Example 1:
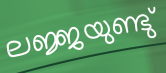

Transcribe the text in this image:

ലജ്ജയുണ്ടു്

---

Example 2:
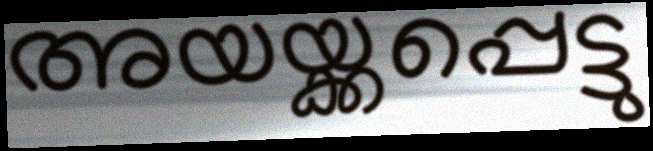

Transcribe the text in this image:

അയയ്ക്കപ്പെട്ടു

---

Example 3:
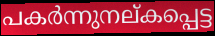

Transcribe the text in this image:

പകർന്നുനല്കപ്പെട്ട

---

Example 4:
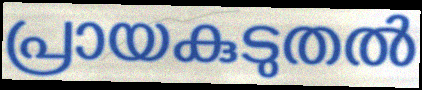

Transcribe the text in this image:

പ്രായകുടുതൽ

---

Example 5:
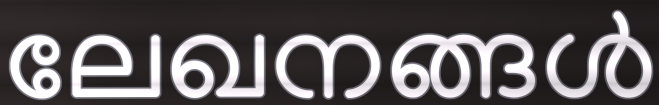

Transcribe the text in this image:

ലേഖനങ്ങൾ